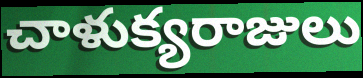
చాళుక్యరాజులు